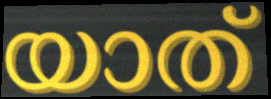
യാത്